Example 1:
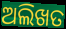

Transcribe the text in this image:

ଅଲିଖତ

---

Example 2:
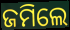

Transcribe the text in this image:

ଜମିଲେ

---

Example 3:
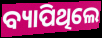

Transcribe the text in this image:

ବ୍ୟାପିଥିଲେ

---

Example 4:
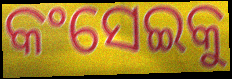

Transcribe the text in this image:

କଂସେଇକୁ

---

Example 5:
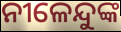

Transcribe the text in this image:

ନୀଳେନ୍ଦୁଙ୍କ